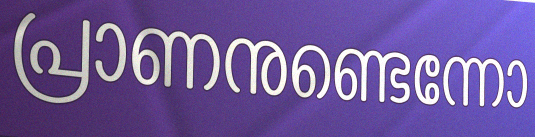
പ്രാണനുണ്ടെന്നോ